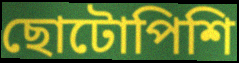
ছোটোপিশি